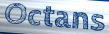
Octans